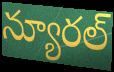
న్యూరల్